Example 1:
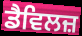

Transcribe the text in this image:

ਡੈਵਿਲਜ਼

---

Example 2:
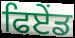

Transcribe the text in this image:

ਫਿਏਂਡ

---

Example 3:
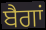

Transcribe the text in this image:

ਬੈਗਾਂ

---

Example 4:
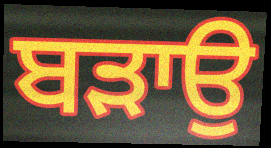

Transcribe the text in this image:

ਬਡ਼ਾਉ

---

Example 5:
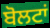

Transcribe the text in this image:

ਬੋਲਟਾਂ